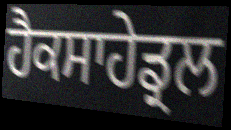
ਹੈਕਸਾਹੇਡ੍ਰਲ